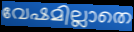
വേഷമില്ലാതെ